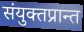
संयुक्तप्रान्त